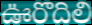
ఊరొదిలి